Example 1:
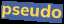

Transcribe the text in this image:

pseudo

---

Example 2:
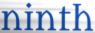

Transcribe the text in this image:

ninth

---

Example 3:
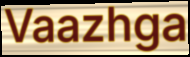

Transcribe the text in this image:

Vaazhga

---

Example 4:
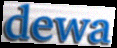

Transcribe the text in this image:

dewa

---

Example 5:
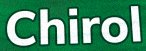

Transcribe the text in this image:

Chirol